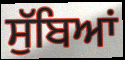
ਸੁੱਬਿਆਂ